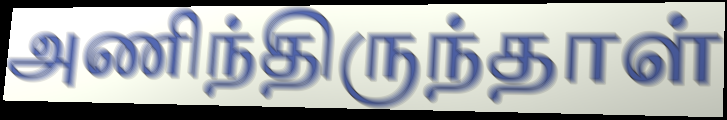
அணிந்திருந்தாள்